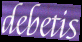
debetis